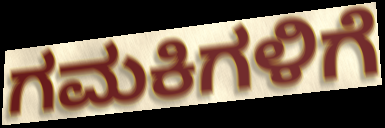
ಗಮಕಿಗಳಿಗೆ